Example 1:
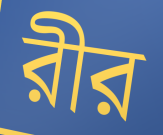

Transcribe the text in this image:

রীর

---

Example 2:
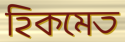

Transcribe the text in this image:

হিকমেত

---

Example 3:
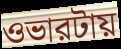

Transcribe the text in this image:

ওভারটায়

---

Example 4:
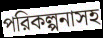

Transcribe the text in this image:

পরিকল্পনাসহ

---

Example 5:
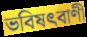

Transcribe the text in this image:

ভবিষৎবাণী